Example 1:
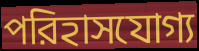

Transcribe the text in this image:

পরিহাসযোগ্য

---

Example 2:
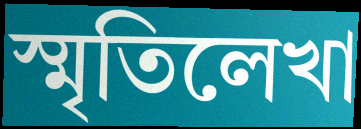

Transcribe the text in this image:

স্মৃতিলেখা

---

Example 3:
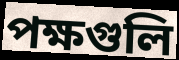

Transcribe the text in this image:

পক্ষগুলি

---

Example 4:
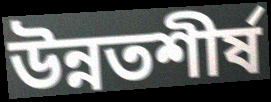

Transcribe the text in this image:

উন্নতশীর্ষ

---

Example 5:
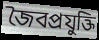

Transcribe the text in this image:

জৈবপ্রযুক্তি